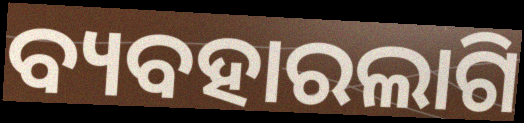
ବ୍ୟବହାରଲାଗି